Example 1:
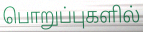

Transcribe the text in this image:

பொறுப்புகளில்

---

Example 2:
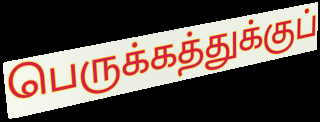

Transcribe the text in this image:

பெருக்கத்துக்குப்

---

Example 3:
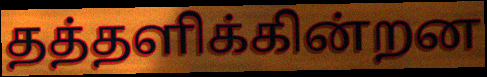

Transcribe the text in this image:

தத்தளிக்கின்றன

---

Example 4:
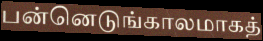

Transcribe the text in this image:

பன்னெடுங்காலமாகத்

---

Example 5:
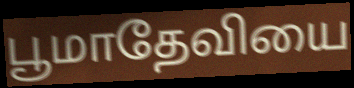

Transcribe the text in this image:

பூமாதேவியை